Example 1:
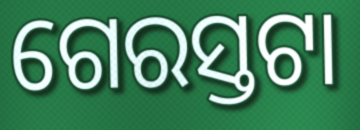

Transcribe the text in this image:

ଗେରସ୍ତଟା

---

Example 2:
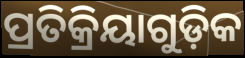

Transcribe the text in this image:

ପ୍ରତିକ୍ରିୟାଗୁଡ଼ିକ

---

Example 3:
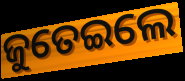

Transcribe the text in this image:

ଜୁତେଇଲେ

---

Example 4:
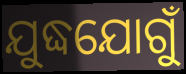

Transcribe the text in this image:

ଯୁଦ୍ଧଯୋଗୁଁ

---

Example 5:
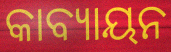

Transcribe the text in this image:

କାବ୍ୟାୟନ